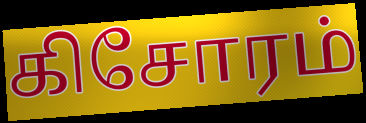
கிசோரம்